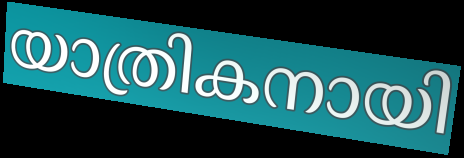
യാത്രികനായി